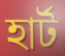
হার্ট